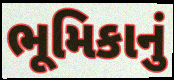
ભૂમિકાનું